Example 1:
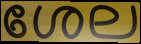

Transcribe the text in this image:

ശേല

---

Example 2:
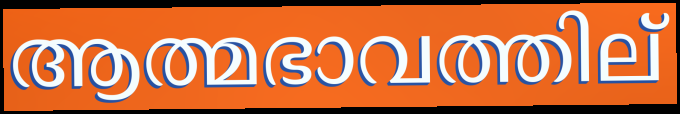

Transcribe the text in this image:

ആത്മഭാവത്തില്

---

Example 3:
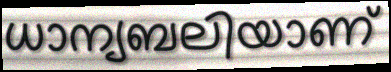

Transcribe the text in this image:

ധാന്യബലിയാണ്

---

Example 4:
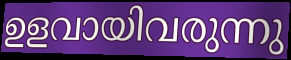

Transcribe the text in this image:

ഉളവായിവരുന്നു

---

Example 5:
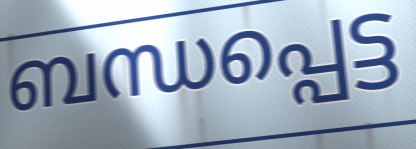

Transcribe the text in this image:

ബന്ധപ്പെട്ട